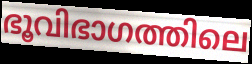
ഭൂവിഭാഗത്തിലെ